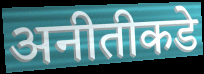
अनीतीकडे